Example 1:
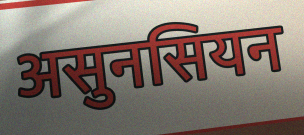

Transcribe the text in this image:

असुनसियन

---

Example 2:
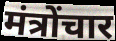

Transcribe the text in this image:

मंत्रोंचार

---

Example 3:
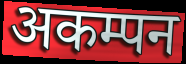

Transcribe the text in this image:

अकम्पन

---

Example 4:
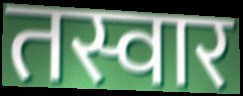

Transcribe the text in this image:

तस्वार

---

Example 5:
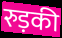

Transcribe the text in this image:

रुड़की